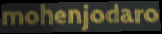
mohenjodaro